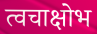
त्वचाक्षोभ